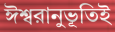
ঈশ্বরানুভূতিই